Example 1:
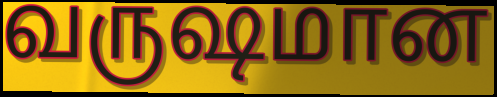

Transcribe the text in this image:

வருஷமான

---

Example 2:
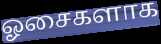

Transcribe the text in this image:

ஓசைகளாக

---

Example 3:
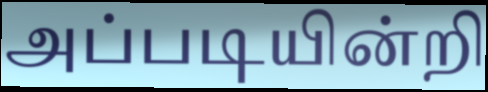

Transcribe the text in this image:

அப்படியின்றி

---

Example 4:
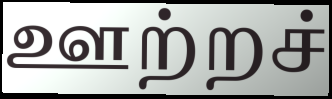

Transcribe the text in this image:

ஊற்றச்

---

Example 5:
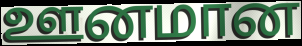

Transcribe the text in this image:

ஊனமான